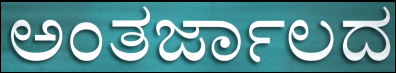
ಅಂತರ್ಜಾಲದ